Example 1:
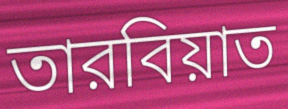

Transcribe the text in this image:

তারবিয়াত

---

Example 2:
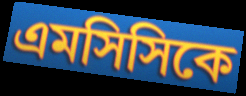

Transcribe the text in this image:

এমসিসিকে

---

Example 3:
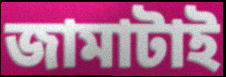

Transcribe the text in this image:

জামাটাই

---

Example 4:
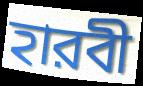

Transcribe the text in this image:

হারবী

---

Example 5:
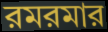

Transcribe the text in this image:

রমরমার